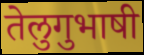
तेलुगुभाषी